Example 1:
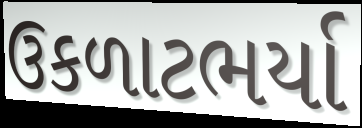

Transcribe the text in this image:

ઉકળાટભર્યા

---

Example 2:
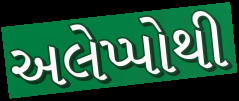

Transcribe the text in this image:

અલેપ્પોથી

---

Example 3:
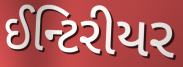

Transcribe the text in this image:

ઈન્ટિરીયર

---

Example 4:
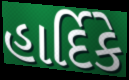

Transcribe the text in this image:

હાર્દિકે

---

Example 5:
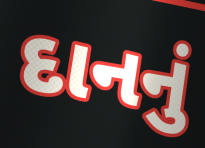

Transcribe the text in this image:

દાનનું